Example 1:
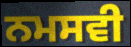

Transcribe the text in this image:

ਨਮਸਵੀ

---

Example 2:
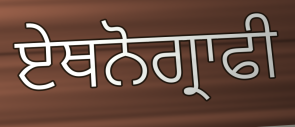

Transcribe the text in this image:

ਏਥਨੋਗ੍ਰਾਫੀ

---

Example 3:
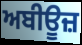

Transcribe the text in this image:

ਅਬੀਊਜ਼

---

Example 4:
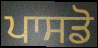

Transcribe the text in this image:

ਪਾਸਡੋ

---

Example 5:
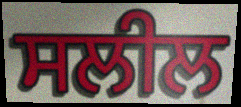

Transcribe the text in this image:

ਸਲੀਲ